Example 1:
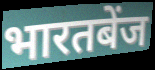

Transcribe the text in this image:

भारतबेंज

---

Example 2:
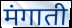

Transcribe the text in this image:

मंगाती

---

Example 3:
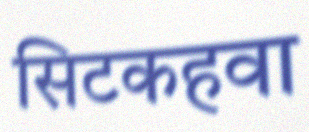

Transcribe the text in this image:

सिटकहवा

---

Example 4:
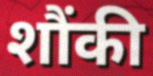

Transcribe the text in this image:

शौंकी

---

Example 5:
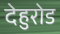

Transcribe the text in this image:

देहुरोड